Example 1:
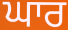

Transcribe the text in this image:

ਘਾਰ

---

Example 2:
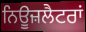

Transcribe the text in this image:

ਨਿਊਜ਼ਲੈਟਰਾਂ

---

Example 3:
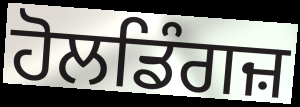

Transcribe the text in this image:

ਹੋਲਡਿੰਗਜ਼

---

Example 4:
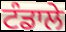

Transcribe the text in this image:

ਟੰਡਾਲੇ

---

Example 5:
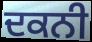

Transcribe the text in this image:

ਦਕਨੀ